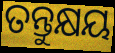
ତନ୍ତୁକ୍ଷୟ